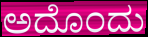
ಅದೊಂದು